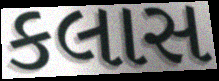
કલાસ